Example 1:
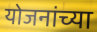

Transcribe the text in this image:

योजनांच्या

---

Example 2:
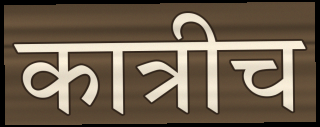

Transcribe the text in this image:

कात्रीच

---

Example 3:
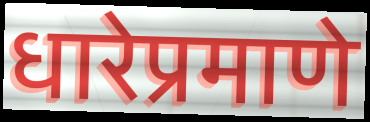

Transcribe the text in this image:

धारेप्रमाणे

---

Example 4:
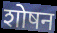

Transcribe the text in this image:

शोषन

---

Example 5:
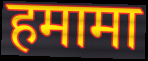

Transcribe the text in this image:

हमामा